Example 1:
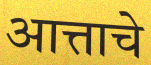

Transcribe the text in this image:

आत्ताचे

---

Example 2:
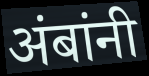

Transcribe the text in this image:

अंबांनी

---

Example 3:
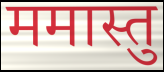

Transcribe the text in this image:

ममास्तु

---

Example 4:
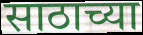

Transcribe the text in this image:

साठाच्या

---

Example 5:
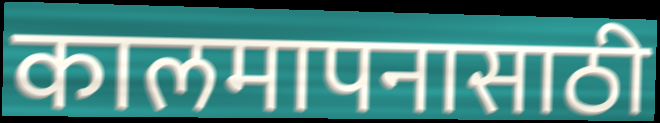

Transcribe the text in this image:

कालमापनासाठी